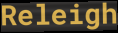
Releigh